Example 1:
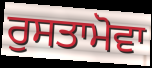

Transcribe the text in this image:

ਰੁਸਤਾਮੋਵਾ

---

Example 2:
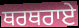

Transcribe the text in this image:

ਥਰਥਰਾਏ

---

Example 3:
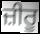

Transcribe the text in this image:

ਜ਼ੀਰੂ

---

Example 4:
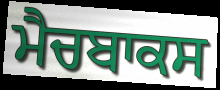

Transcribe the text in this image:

ਮੈਚਬਾਕਸ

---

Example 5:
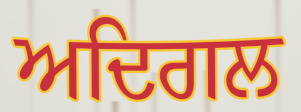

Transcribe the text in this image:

ਅਦਿਗਲ